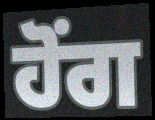
ਹੋੰਗ